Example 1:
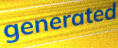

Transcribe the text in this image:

generated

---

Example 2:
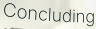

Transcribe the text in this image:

Concluding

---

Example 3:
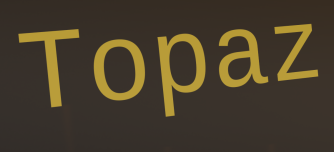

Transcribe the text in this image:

Topaz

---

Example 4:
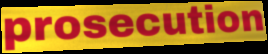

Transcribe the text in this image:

prosecution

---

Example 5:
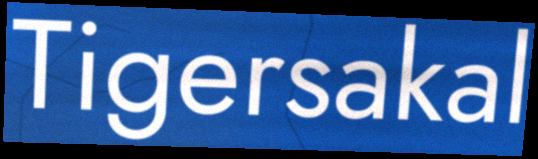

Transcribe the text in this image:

Tigersakal